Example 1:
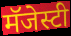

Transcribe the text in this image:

मॅजेस्टी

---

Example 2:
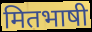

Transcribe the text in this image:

मितभाषी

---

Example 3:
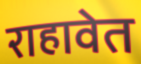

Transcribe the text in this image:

राहावेत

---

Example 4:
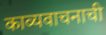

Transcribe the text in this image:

काव्यवाचनाची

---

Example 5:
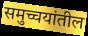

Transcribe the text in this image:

समुच्चयांतील